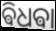
ଵିଧଵା